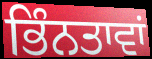
ਭਿੰਨਤਾਵਾਂ